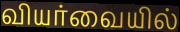
வியர்வையில்